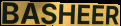
BASHEER